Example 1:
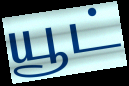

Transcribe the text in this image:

யூட்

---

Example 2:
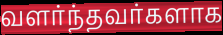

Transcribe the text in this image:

வளர்ந்தவர்களாக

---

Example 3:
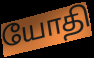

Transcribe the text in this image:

யோதி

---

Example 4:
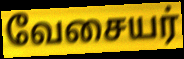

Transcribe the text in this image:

வேசையர்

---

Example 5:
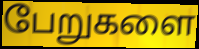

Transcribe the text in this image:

பேறுகளை